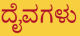
ದೈವಗಳು